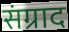
संग्राद